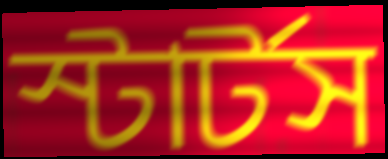
স্টার্টস